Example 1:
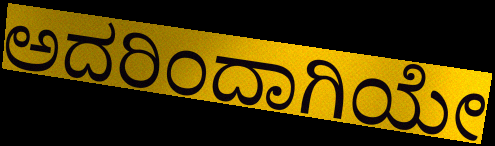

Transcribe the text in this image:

ಅದರಿಂದಾಗಿಯೇ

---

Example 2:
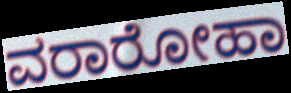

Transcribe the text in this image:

ವರಾರೋಹಾ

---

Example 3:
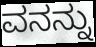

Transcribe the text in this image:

ವನನ್ನು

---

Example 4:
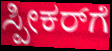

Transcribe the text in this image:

ಸ್ಪೀಕರ್‌ಗೆ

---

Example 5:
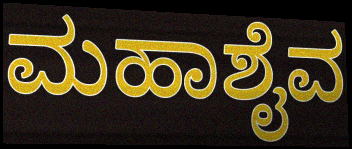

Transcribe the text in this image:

ಮಹಾಶೈವ